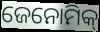
ଜେନୋମିକ୍